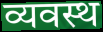
व्यवस्थ